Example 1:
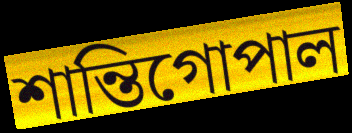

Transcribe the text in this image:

শান্তিগোপাল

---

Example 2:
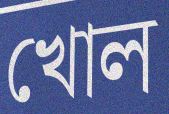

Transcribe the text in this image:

খোল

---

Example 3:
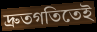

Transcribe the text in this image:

দ্রুতগতিতেই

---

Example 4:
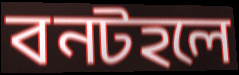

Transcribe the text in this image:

বনটহলে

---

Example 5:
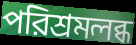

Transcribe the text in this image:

পরিশ্রমলব্ধ